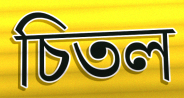
চিতল